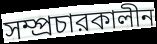
সম্প্রচারকালীন